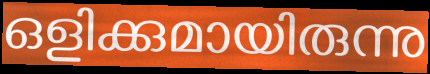
ഒളിക്കുമായിരുന്നു